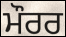
ਮੌਰਰ